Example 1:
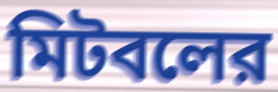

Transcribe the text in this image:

মিটবলের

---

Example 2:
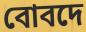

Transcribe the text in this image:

বোবদে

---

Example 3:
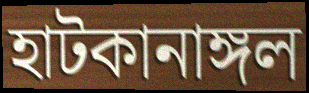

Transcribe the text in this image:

হাটকানাঙ্গল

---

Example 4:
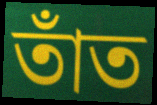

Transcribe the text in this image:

তাঁত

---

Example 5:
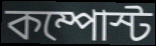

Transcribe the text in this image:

কম্পোস্ট